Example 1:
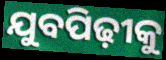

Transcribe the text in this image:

ଯୁବପିଢ଼ୀକୁ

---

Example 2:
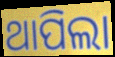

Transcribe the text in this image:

ଥାପିଲା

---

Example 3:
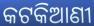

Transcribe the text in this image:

କଟକିଆଣୀ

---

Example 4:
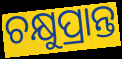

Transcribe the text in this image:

ଚକ୍ଷୁପ୍ରାନ୍ତ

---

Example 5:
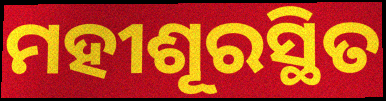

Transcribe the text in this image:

ମହୀଶୂରସ୍ଥିତ